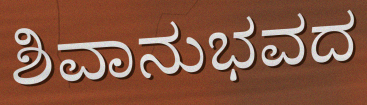
ಶಿವಾನುಭವದ